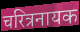
चरित्रनायक